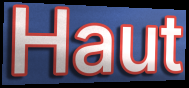
Haut